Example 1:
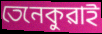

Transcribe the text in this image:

তেনেকুৱাই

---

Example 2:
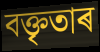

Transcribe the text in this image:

বক্তৃতাৰ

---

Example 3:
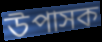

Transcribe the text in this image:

উপাসক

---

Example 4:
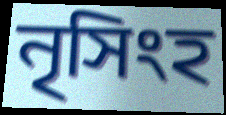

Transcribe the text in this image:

নৃসিংহ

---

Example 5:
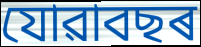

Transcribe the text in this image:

যোৱাবছৰ